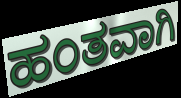
ಹಂತವಾಗಿ